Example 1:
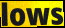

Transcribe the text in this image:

lows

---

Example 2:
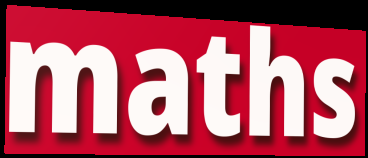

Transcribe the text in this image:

maths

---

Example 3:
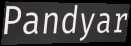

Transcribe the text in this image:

Pandyar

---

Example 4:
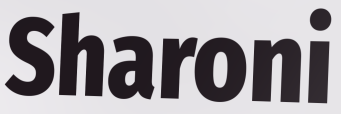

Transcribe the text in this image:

Sharoni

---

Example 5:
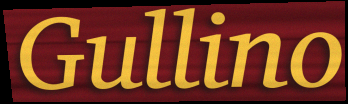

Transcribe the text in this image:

Gullino